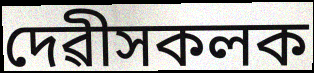
দেৱীসকলক